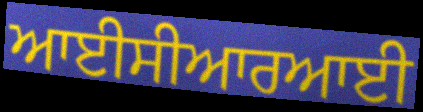
ਆਈਸੀਆਰਆਈ